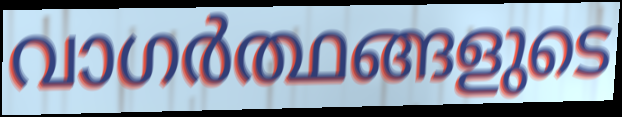
വാഗർത്ഥങ്ങളുടെ